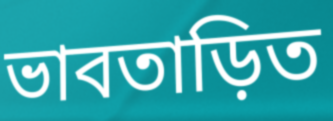
ভাবতাড়িত